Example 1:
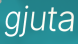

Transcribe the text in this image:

gjuta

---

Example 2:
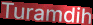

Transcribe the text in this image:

Turamdih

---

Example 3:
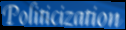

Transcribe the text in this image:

Politicization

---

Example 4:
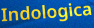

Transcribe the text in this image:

Indologica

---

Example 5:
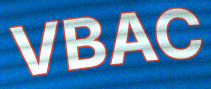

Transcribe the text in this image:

VBAC